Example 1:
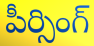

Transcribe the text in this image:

పీర్సింగ్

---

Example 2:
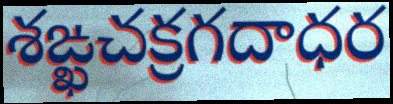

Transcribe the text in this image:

శఙ్ఖచక్రగదాధర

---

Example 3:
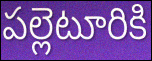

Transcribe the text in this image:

పల్లెటూరికి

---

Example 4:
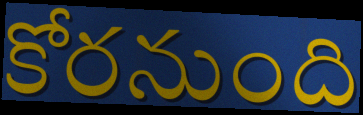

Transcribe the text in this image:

కోరనుంది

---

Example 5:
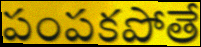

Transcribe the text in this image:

పంపకపోతే